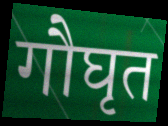
गौघृत